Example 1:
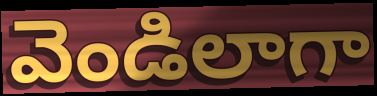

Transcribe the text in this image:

వెండిలాగా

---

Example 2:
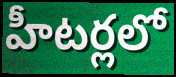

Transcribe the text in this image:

హీటర్లలో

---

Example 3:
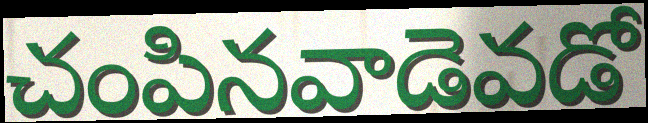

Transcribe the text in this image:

చంపినవాడెవడో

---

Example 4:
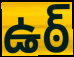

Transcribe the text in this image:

ఉఠ్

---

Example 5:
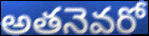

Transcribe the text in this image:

అతనెవరో